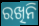
ରଖିନି